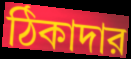
ঠিকাদার